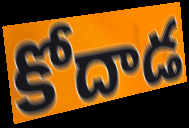
కోదాడ